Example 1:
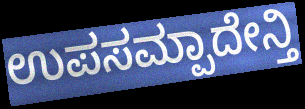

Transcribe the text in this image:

ಉಪಸಮ್ಪಾದೇನ್ತಿ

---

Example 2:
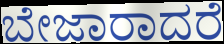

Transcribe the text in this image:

ಬೇಜಾರಾದರೆ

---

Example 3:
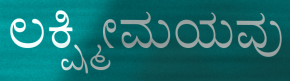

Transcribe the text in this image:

ಲಕ್ಷ್ಮೀಮಯವು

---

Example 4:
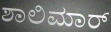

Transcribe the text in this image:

ಶಾಲಿಮಾರ್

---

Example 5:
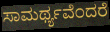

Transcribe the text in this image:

ಸಾಮರ್ಥ್ಯವೆಂದರೆ